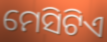
ମେସିଟିଏ